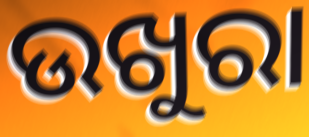
ଉଖୁରା